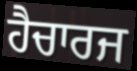
ਹੈਚਾਰਜ